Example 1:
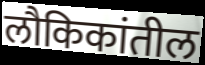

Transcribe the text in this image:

लौकिकांतील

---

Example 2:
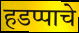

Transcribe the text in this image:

हडप्पाचे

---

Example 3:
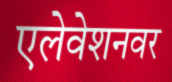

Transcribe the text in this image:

एलेवेशनवर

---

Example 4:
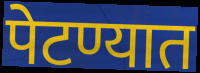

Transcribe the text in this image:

पेटण्यात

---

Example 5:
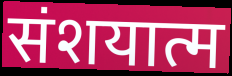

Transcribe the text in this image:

संशयात्म